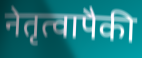
नेतृत्वापैकी